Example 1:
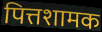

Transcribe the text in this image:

पित्तशामक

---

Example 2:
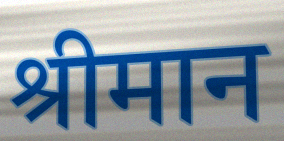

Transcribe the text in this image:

श्रीमान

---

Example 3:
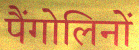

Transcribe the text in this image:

पैंगोलिनों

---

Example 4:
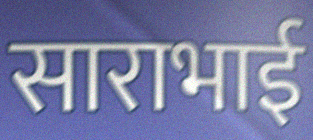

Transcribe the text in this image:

साराभाई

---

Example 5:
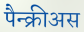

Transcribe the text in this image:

पैन्क्रीअस